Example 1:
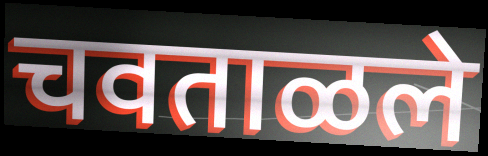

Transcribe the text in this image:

चवताळले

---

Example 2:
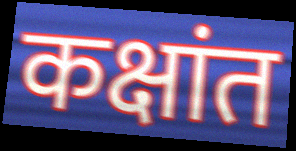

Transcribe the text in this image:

कक्षांत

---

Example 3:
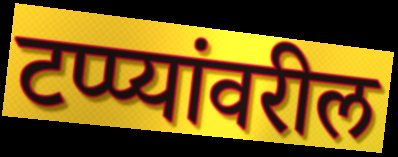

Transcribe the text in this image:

टप्प्यांवरील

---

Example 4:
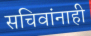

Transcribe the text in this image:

सचिवांनाही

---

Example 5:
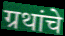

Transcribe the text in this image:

ग्रथांचे